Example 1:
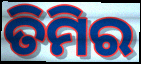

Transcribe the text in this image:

ତିମିର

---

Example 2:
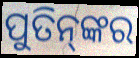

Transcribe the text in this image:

ପୁତିନ୍‌ଙ୍କର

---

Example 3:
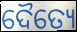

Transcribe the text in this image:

ଦୈତ୍ୟେ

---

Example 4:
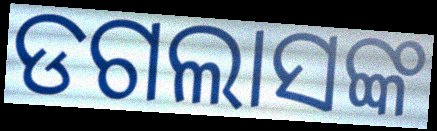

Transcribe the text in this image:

ଡଗଲାସଙ୍କ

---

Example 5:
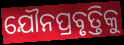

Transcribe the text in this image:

ଯୌନପ୍ରବୃତ୍ତିକୁ